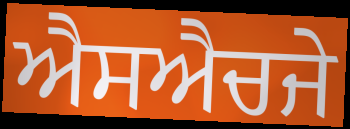
ਐਸਐਚਜੇ